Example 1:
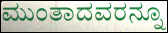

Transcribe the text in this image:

ಮುಂತಾದವರನ್ನೂ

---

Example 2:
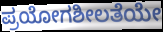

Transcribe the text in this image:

ಪ್ರಯೋಗಶೀಲತೆಯೇ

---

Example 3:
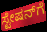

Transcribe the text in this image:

ಸ್ಟೇಷನ್‍ಗೆ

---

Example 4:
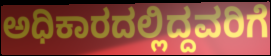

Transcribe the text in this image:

ಅಧಿಕಾರದಲ್ಲಿದ್ದವರಿಗೆ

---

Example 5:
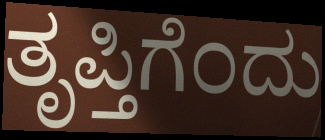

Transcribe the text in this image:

ತೃಪ್ತಿಗೆಂದು